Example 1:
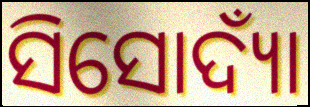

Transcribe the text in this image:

ସିସୋଦ୍ୟାଁ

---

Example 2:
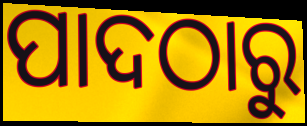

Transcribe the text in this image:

ପାଦଠାରୁ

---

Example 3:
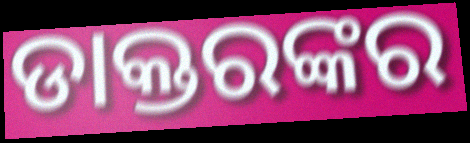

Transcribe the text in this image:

ଡାକ୍ତରଙ୍କର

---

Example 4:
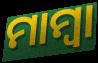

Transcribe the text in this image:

ମାମ୍ଵା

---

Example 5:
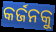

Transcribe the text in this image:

କର୍ଜନକୁ